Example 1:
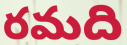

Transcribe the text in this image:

రమది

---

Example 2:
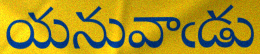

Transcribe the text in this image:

యనువాఁడు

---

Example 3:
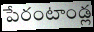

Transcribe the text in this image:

పేరంటాండ్ల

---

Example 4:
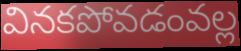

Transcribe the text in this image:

వినకపోవడంవల్ల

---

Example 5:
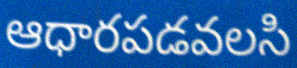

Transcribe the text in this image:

ఆధారపడవలసి